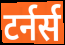
टर्नर्स